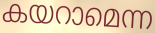
കയറാമെന്ന